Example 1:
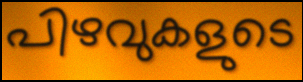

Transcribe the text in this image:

പിഴവുകളുടെ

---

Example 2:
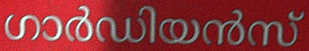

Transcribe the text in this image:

ഗാർഡിയൻസ്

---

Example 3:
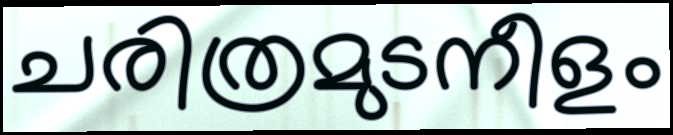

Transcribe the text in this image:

ചരിത്രമുടനീളം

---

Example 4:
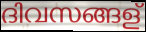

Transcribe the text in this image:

ദിവസങ്ങള്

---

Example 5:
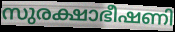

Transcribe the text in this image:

സുരക്ഷാഭീഷണി